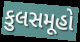
કુલસમૂહો